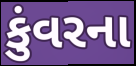
કુંવરના